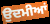
ਉਦਮੀਆਂ